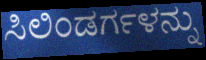
ಸಿಲಿಂಡರ್ಗಳನ್ನು